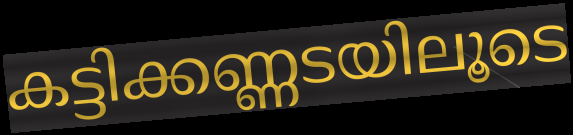
കട്ടിക്കണ്ണടയിലൂടെ